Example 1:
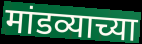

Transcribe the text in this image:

मांडव्याच्या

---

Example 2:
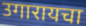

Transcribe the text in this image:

उगारायचा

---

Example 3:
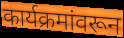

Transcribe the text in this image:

कार्यक्रमांवरून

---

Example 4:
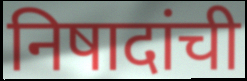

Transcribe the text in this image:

निषादांची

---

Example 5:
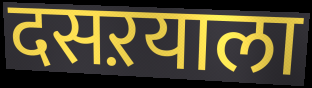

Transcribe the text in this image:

दसऱयाला